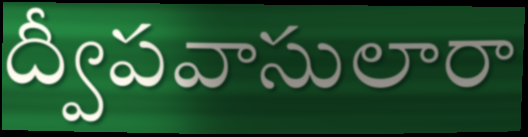
ద్వీపవాసులారా